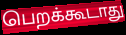
பெறக்கூடாது